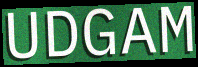
UDGAM